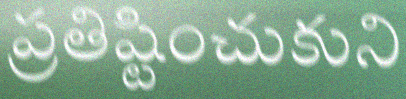
ప్రతిష్టించుకుని